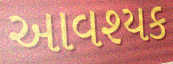
આવશ્યક